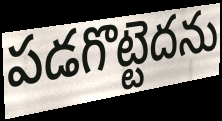
పడగొట్టెదను